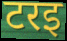
टरइ